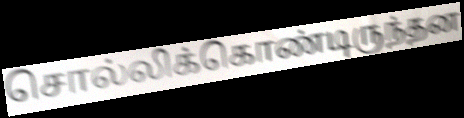
சொல்லிக்கொண்டிருந்தன